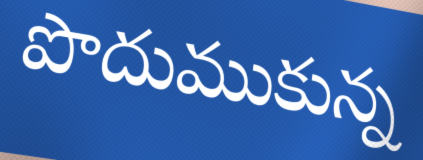
పొదుముకున్న